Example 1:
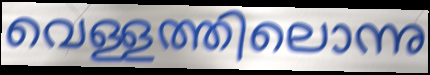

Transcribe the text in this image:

വെള്ളത്തിലൊന്നു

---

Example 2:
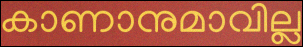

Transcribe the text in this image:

കാണാനുമാവില്ല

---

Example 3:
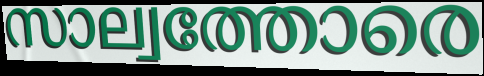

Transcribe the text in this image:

സാല്വത്തോരെ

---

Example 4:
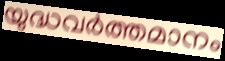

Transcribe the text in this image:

യുദ്ധവർത്തമാനം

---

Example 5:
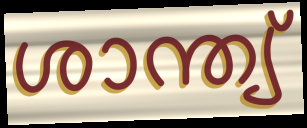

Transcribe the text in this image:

ശാന്ത്യ്